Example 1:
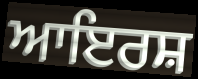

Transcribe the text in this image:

ਆਇਰਸ਼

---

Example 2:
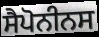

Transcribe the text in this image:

ਸੈਪੋਨੀਨਸ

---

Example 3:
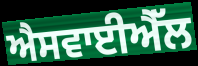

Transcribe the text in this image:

ਐਸਵਾਈਐੱਲ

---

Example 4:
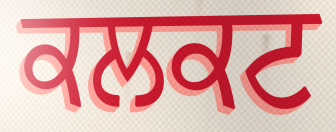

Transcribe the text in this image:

ਕਲਕਟ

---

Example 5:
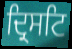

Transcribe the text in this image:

ਦ੍ਰਿਸਟਿ